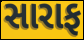
સારાફ